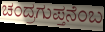
ಚಂದ್ರಗುಪ್ತನೆಂಬ